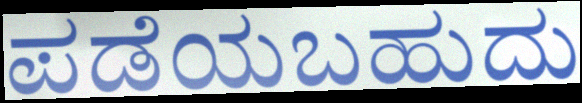
ಪಡೆಯಬಹುದು